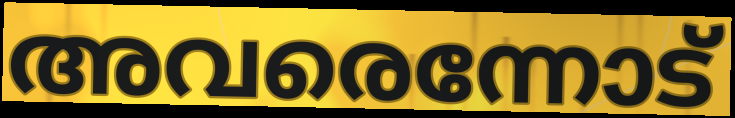
അവരെന്നോട്